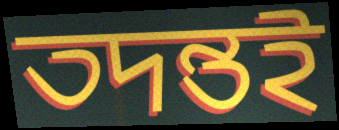
তদন্তই